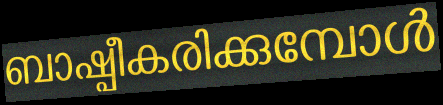
ബാഷ്പീകരിക്കുമ്പോൾ